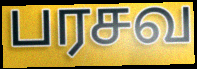
பரசவ